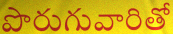
పొరుగువారితో